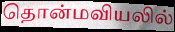
தொன்மவியலில்